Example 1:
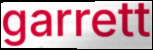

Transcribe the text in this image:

garrett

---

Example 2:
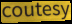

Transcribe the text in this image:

coutesy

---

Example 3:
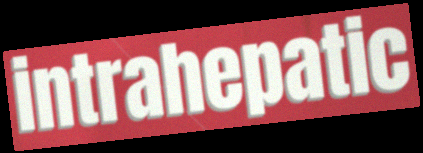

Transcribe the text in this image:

intrahepatic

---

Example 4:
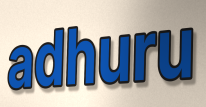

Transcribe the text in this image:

adhuru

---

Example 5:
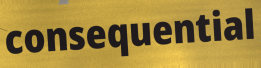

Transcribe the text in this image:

consequential